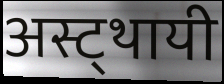
अस्ट्थायी